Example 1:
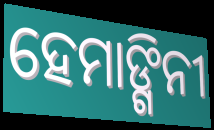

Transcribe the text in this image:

ହେମାଙ୍ଗିନୀ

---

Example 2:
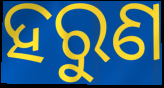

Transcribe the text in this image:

ହରୁଣ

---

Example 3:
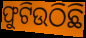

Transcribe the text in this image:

ଫୁଟିଉଠିଛି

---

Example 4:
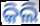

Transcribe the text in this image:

କିଲି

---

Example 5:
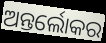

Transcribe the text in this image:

ଅନ୍ତର୍ଲୋକର